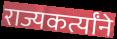
राज्यकर्त्यांने